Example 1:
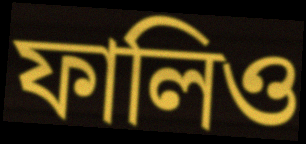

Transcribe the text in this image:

ফালিও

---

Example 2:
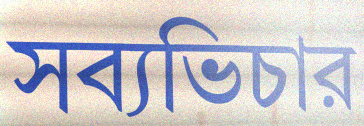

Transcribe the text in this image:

সব্যভিচার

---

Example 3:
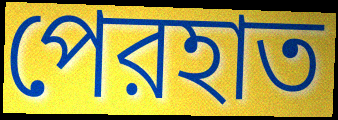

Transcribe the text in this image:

পেরহাত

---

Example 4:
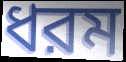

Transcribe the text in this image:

ধরম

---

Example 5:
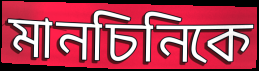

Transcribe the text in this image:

মানচিনিকে